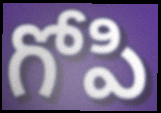
గోపి